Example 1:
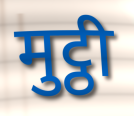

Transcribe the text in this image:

मुट्ठी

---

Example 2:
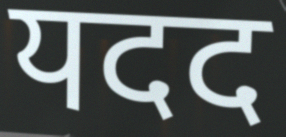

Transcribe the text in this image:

यदद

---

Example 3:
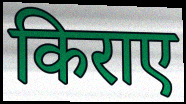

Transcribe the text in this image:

किराए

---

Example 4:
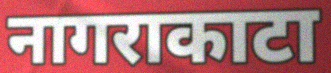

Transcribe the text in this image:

नागराकाटा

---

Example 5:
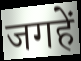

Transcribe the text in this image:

जगहें